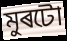
মুৰটো